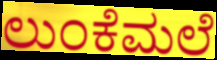
ಲುಂಕೆಮಲೆ